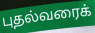
புதல்வரைக்